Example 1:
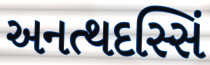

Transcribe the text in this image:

અનત્થદસ્સિં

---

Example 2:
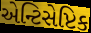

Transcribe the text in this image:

એન્ટિસેપ્ટિક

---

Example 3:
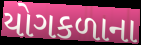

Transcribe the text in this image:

યોગકળાના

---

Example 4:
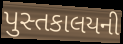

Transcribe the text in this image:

પુસ્તકાલયની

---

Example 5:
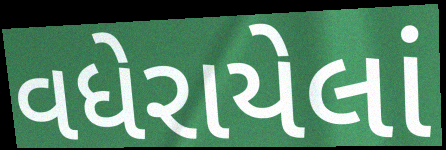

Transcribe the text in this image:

વધેરાયેલાં